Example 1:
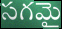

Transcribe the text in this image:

సగమై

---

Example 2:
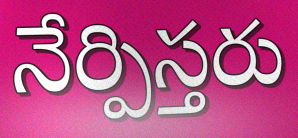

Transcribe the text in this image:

నేర్పిస్తరు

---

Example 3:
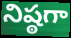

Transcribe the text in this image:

నిష్ఠగా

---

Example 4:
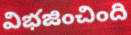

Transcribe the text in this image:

విభజించింది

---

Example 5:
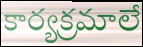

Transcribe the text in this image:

కార్యక్రమాలే